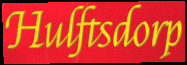
Hulftsdorp